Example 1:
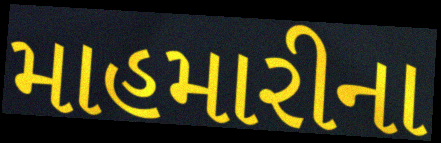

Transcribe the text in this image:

માહમારીના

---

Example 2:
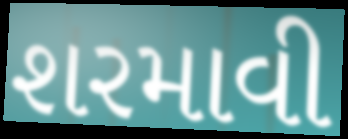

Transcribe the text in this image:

શરમાવી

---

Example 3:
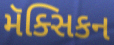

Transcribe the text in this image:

મૅક્સિકન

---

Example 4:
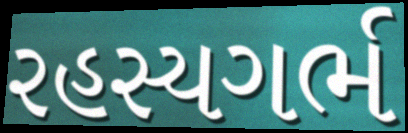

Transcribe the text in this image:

રહસ્યગર્ભ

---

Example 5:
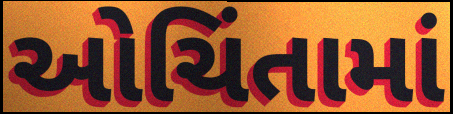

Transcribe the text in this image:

ઓચિંતામાં